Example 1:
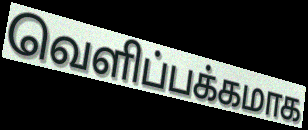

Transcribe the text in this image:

வெளிப்பக்கமாக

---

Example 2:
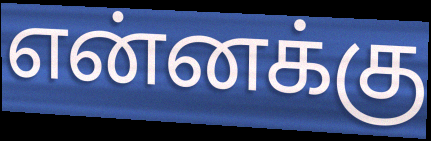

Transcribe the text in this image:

என்னக்கு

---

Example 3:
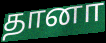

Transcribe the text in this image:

தானா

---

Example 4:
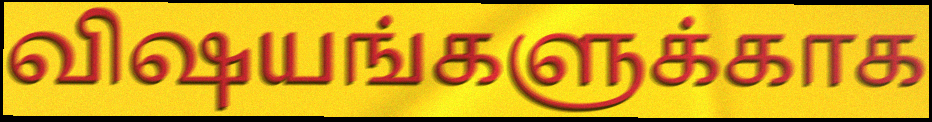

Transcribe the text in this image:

விஷயங்களுக்காக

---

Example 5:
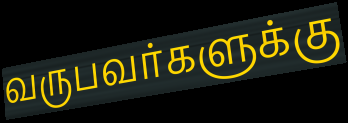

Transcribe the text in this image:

வருபவர்களுக்கு